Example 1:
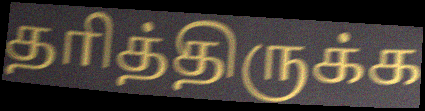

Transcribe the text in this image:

தரித்திருக்க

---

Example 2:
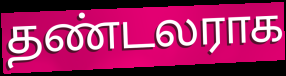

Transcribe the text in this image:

தண்டலராக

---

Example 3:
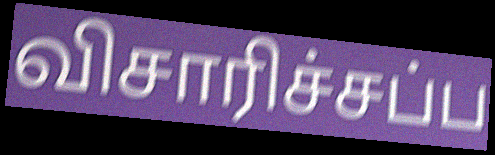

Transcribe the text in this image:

விசாரிச்சப்ப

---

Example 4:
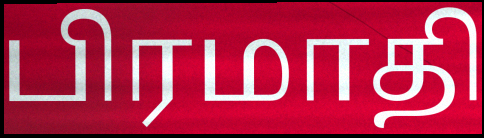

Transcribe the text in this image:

பிரமாதி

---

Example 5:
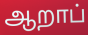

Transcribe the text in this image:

ஆறாப்